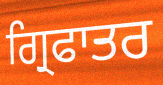
ਗ੍ਰਿਫਾਤਰ